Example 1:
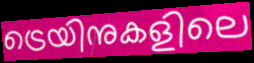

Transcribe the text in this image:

ട്രെയിനുകളിലെ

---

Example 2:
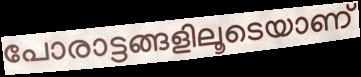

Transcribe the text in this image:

പോരാട്ടങ്ങളിലൂടെയാണ്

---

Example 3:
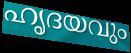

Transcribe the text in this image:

ഹൃദയവും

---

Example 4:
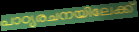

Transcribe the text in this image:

പാഠ്യരചനയിലേക്ക്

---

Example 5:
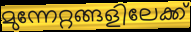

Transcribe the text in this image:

മുന്നേറ്റങ്ങളിലേക്ക്